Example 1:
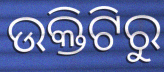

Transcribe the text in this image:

ଉକ୍ତିଟିରୁ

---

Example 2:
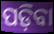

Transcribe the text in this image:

ପଡ଼ିବା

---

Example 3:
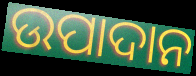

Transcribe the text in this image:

ଉପାଦାନ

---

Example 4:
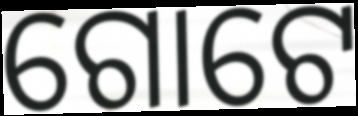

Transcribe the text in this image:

ଗୋଟେ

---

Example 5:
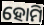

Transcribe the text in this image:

ହୋମି